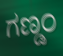
ಗಣ್ಡಂ